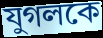
যুগলকে